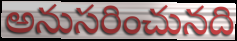
అనుసరించునది